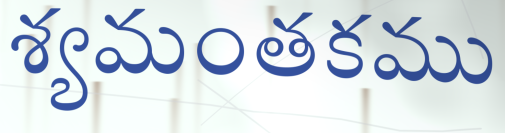
శ్యమంతకము